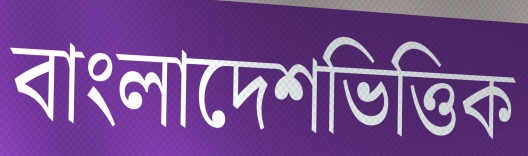
বাংলাদেশভিত্তিক